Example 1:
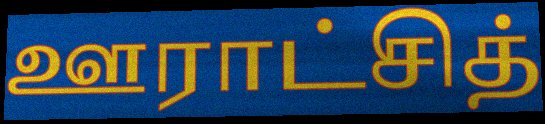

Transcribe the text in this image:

ஊராட்சித்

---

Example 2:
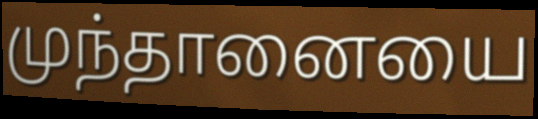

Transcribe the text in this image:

முந்தானையை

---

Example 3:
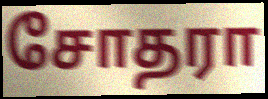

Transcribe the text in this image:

சோதரா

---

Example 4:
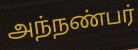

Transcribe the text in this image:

அந்நண்பர்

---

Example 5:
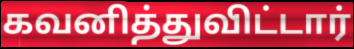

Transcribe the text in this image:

கவனித்துவிட்டார்